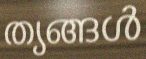
ത്യങ്ങൾ